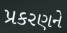
પ્રકરણને